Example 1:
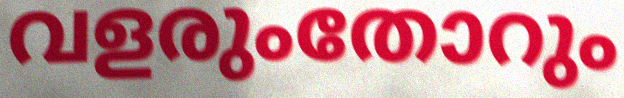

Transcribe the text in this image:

വളരുംതോറും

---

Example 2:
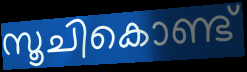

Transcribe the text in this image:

സൂചികൊണ്ട്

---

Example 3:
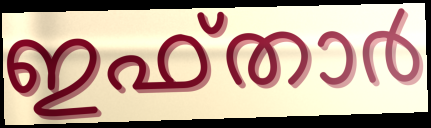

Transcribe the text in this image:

ഇഫ്താർ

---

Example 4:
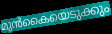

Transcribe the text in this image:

മുൻകൈയെടുക്കും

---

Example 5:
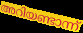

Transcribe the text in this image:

അറിയണ്ടാന്ന്